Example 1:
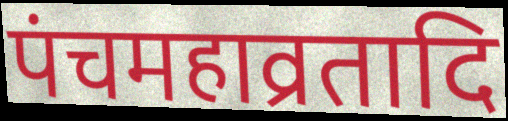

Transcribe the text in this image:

पंचमहाव्रतादि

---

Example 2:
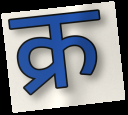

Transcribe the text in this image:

क्र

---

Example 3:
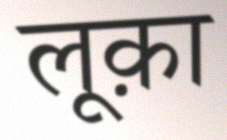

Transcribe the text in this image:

लूक़ा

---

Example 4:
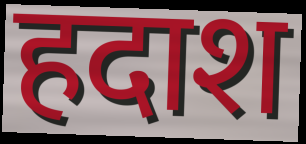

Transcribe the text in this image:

हदाश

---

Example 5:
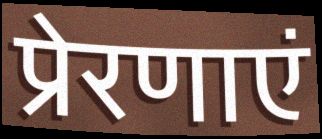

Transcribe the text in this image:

प्रेरणाएं